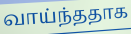
வாய்ந்ததாக